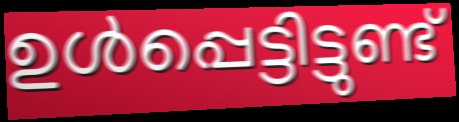
ഉൾപ്പെട്ടിട്ടുണ്ട്